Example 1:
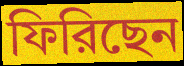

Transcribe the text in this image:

ফিরিছেন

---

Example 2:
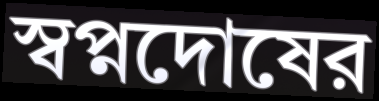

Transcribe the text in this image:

স্বপ্নদোষের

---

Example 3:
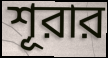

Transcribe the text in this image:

শূরার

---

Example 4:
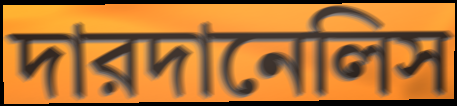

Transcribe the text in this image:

দারদানেলিস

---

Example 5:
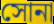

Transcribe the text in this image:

সোনা